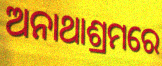
ଅନାଥାଶ୍ରମରେ